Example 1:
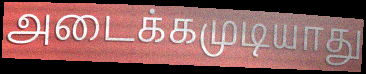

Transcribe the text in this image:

அடைக்கமுடியாது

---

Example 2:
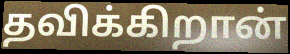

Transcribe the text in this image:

தவிக்கிறான்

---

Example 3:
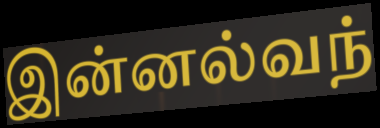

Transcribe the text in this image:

இன்னல்வந்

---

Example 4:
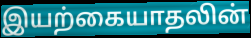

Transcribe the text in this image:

இயற்கையாதலின்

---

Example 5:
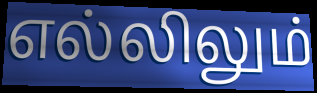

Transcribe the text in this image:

எல்லிலும்